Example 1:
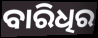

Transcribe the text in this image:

ବାରିଧିର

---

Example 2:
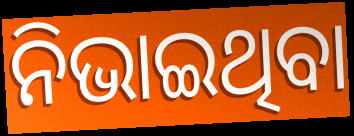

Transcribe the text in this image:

ନିଭାଇଥିବା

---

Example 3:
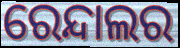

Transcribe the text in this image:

ରେନ୍ଦାଲର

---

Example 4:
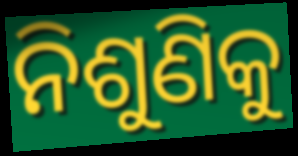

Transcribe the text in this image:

ନିଶୁଣିକୁ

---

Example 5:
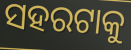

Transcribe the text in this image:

ସହରଟାକୁ